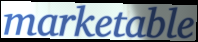
marketable